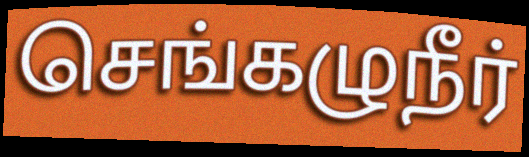
செங்கழுநீர்